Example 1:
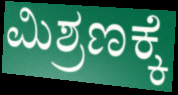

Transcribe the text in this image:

ಮಿಶ್ರಣಕ್ಕೆ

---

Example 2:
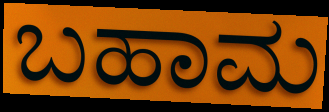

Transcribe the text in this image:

ಬಹಾಮ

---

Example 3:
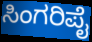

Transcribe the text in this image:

ಸಿಂಗರಿಪೈ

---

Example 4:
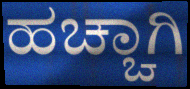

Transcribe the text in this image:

ಹಚ್ಚಾಗಿ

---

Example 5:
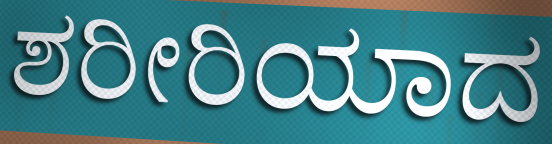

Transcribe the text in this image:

ಶರೀರಿಯಾದ